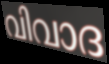
വിവാദ